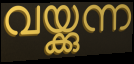
വയ്ക്കുന്ന